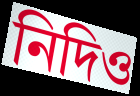
নিদিও